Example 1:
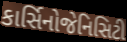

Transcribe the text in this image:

કાર્સિનોજેનિસિટી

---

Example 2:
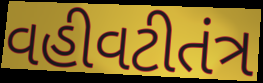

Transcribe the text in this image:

વહીવટીતંત્ર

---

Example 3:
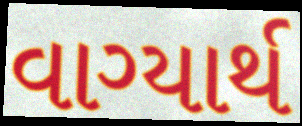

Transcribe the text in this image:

વાગ્યાર્થ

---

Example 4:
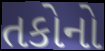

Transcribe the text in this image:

તકોનો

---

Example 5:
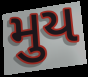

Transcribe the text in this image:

મુય